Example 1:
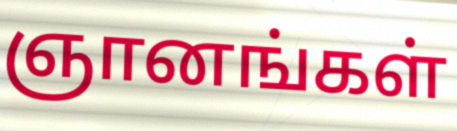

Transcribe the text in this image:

ஞானங்கள்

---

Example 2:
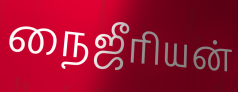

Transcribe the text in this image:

நைஜீரியன்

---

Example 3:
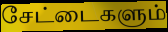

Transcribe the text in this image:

சேட்டைகளும்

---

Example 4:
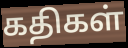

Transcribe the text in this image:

கதிகள்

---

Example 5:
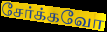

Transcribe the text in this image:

சேர்க்கவோ